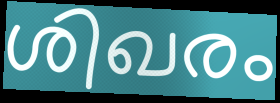
ശിഖരം